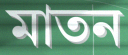
মাতন